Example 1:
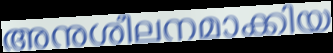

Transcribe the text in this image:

അനുശീലനമാക്കിയ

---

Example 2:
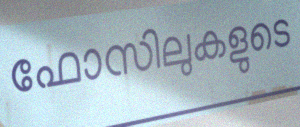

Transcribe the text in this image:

ഫോസിലുകളുടെ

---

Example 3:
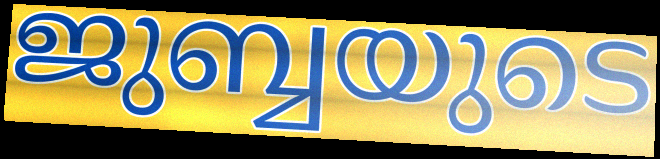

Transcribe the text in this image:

ജുബ്ബയുടെ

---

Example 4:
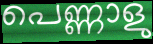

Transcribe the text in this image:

പെണ്ണാളു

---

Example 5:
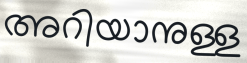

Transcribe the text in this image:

അറിയാനുള്ള